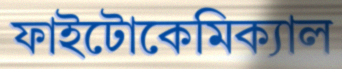
ফাইটোকেমিক্যাল